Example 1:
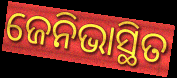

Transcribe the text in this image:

ଜେନିଭାସ୍ଥିତ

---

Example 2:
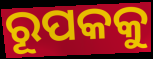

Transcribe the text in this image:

ରୂପକକୁ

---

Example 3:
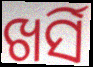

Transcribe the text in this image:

ଖର୍ସି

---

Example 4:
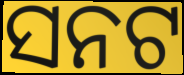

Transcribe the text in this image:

ସନଟ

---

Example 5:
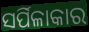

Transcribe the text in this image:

ସର୍ପିଳାକାର